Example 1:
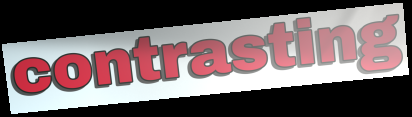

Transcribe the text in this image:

contrasting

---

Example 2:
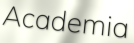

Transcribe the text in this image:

Academia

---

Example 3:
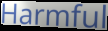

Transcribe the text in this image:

Harmful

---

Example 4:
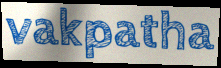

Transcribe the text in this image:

vakpatha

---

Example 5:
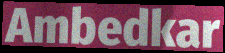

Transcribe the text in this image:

Ambedkar